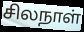
சிலநாள்